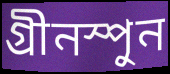
গ্রীনস্পুন